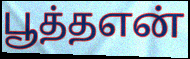
பூத்தஎன்